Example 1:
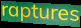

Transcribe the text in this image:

raptures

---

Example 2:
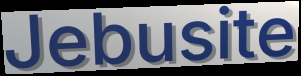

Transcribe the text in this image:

Jebusite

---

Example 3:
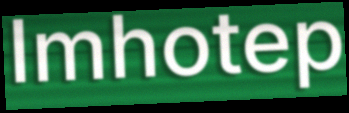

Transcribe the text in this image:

Imhotep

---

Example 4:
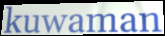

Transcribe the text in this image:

kuwaman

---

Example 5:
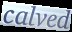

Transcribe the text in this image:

calved